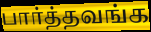
பார்த்தவங்க